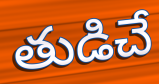
తుడిచే